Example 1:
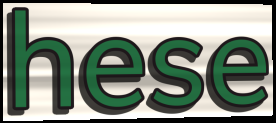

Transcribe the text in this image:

hese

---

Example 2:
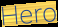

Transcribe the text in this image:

Hero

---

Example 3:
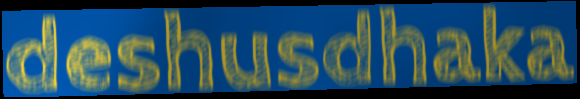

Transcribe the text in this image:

deshusdhaka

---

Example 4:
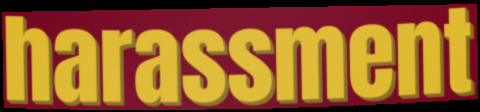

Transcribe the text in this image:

harassment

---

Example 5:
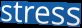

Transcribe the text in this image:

stress